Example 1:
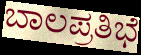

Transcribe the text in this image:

ಬಾಲಪ್ರತಿಭೆ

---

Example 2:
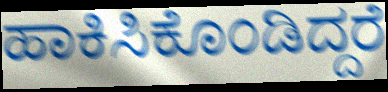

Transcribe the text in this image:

ಹಾಕಿಸಿಕೊಂಡಿದ್ದರೆ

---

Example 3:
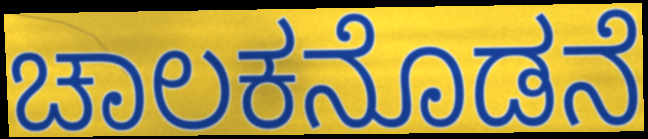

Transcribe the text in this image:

ಚಾಲಕನೊಡನೆ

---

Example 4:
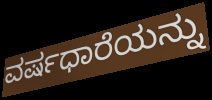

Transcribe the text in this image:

ವರ್ಷಧಾರೆಯನ್ನು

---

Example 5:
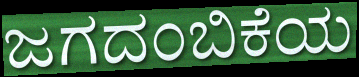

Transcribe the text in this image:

ಜಗದಂಬಿಕೆಯ